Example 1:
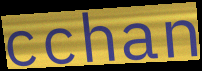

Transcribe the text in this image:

cchan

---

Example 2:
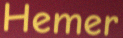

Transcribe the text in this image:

Hemer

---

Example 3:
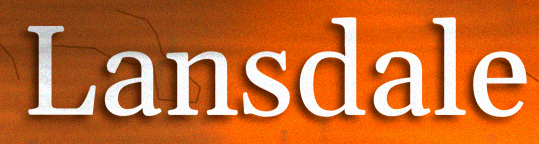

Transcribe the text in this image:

Lansdale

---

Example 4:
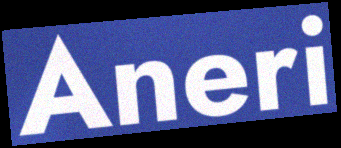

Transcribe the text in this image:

Aneri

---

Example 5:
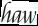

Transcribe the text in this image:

haw